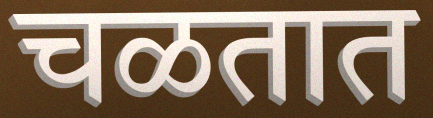
चळतात